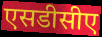
एसडीसीए